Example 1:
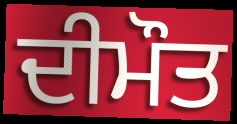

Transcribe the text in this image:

ਦੀਮੌਤ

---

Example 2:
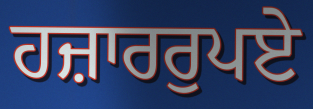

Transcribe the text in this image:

ਹਜ਼ਾਰਰੁਪਏ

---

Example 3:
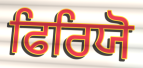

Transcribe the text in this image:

ਫਿਰਿਯੋ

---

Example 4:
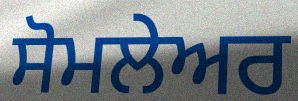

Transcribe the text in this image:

ਸੋਮਲੇਅਰ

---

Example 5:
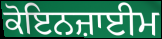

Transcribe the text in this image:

ਕੋਇਨਜ਼ਾਈਮ